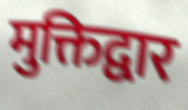
मुक्तिद्वार